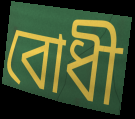
বোধী